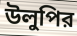
উলুপির